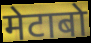
मेटाबो